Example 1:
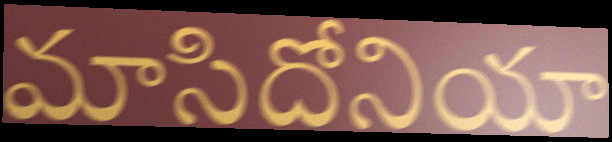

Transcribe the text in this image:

మాసిదోనియా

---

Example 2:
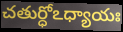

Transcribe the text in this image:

చతుర్ధోఽధ్యాయః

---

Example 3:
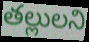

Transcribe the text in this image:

తల్లులని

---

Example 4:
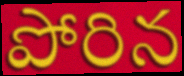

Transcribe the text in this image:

పోరిన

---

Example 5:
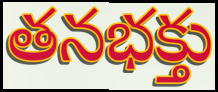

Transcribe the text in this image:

తనభక్తు